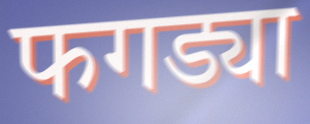
फगड्या